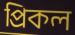
প্রিকল